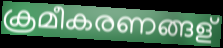
ക്രമീകരണങ്ങള്